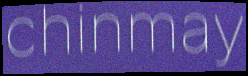
chinmay